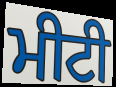
ਮੀਟੀ